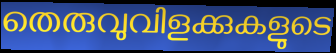
തെരുവുവിളക്കുകളുടെ